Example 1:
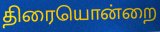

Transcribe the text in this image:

திரையொன்றை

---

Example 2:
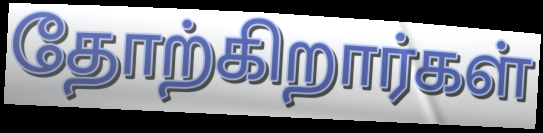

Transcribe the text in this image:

தோற்கிறார்கள்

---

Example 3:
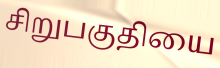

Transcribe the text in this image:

சிறுபகுதியை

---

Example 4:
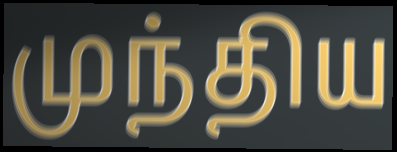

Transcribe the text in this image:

முந்திய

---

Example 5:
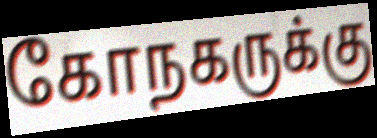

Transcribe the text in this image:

கோநகருக்கு